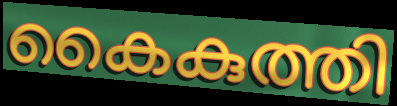
കൈകുത്തി